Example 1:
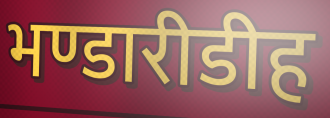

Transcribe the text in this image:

भण्डारीडीह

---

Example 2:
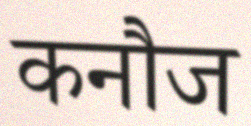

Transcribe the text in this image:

कनौज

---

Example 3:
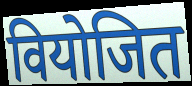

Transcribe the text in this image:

वियोजित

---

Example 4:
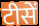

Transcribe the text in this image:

टीसें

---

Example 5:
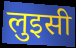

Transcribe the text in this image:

लुइसी